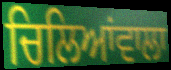
ਚਿਲਿਆਂਵਾਲਾ